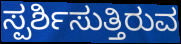
ಸ್ಪರ್ಶಿಸುತ್ತಿರುವ